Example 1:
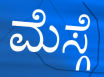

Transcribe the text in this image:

ಮೆಸ್ಗೆ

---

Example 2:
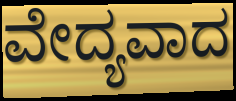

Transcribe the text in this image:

ವೇದ್ಯವಾದ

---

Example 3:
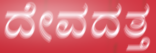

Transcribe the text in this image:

ದೇವದತ್ತ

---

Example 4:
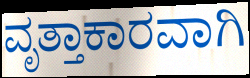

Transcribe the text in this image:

ವೃತ್ತಾಕಾರವಾಗಿ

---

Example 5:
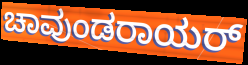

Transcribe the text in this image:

ಚಾವುಂಡರಾಯರ್